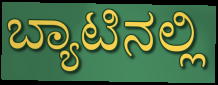
ಬ್ಯಾಟಿನಲ್ಲಿ